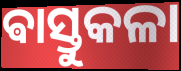
ଵାସ୍ତୁକଳା